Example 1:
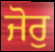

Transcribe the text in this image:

ਜੋਰੁ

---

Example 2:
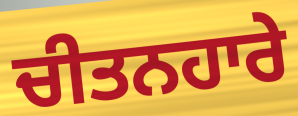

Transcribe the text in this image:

ਚੀਤਨਹਾਰੇ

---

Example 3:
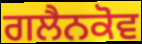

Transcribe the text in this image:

ਗਲੈਨਕੋਵ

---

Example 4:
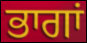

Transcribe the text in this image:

ਭਾਗਾਂ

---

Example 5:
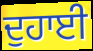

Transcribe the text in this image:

ਦੁਹਾਈ